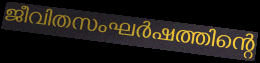
ജീവിതസംഘർഷത്തിന്റെ